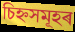
চিহ্নসমূহৰ